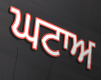
ਘਟਾਅ